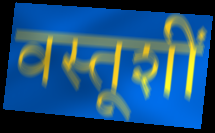
वस्तूशीं